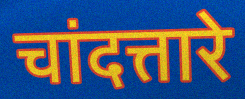
चांदत्तारे